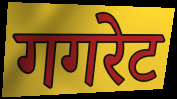
गगरेट